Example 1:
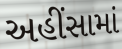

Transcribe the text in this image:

અહીંસામાં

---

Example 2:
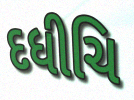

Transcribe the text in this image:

દધીચિ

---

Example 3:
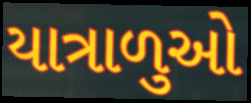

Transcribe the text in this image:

યાત્રાળુઓ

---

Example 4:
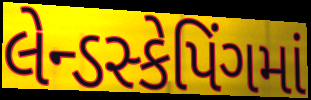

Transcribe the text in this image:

લેન્ડસ્કેપિંગમાં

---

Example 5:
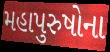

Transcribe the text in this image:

મહાપુરુષોના